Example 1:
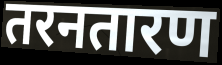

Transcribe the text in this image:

तरनतारण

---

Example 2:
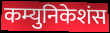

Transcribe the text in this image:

कम्‍युनिकेशंस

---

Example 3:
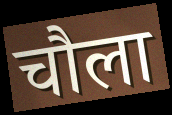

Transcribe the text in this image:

चौला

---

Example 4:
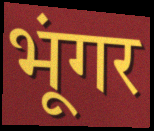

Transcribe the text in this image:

भूंगर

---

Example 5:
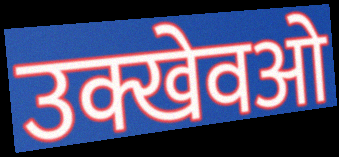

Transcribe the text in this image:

उक्खेवओ